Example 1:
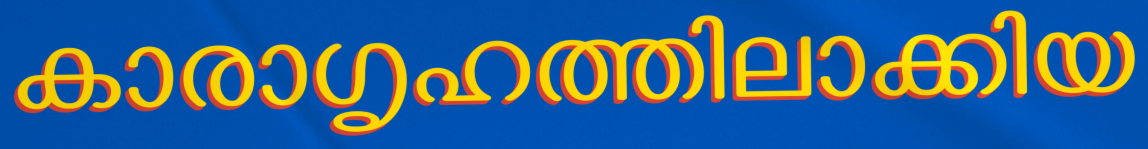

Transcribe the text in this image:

കാരാഗൃഹത്തിലാക്കിയ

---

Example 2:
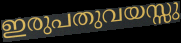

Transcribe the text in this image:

ഇരുപതുവയസ്സു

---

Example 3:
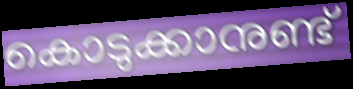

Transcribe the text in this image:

കൊടുക്കാനുണ്ട്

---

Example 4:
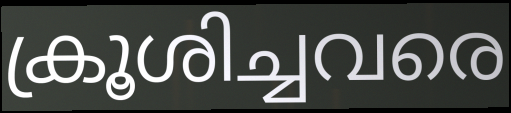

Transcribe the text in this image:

ക്രൂശിച്ചവരെ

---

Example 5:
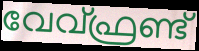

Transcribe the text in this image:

വേവ്ഫ്രണ്ട്